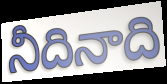
నీదినాది